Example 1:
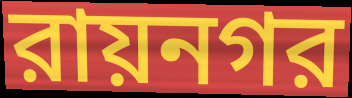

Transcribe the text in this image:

রায়নগর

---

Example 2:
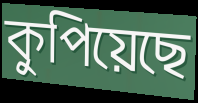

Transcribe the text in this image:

কুপিয়েছে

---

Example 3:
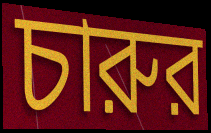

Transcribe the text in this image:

চারুর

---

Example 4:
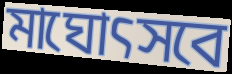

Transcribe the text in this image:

মাঘোৎসবে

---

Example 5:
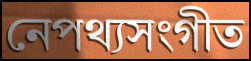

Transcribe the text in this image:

নেপথ্যসংগীত